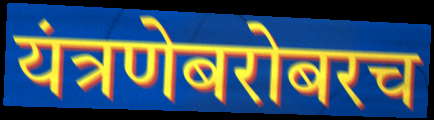
यंत्रणेबरोबरच